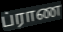
ப்ராண